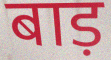
बाड़